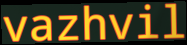
vazhvil